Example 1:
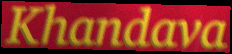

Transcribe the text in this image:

Khandava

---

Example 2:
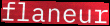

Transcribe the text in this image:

flaneur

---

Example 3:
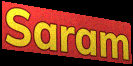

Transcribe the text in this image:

Saram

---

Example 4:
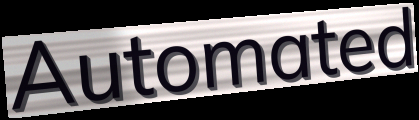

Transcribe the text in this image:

Automated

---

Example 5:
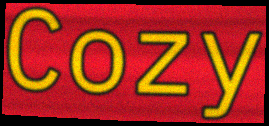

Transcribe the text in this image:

Cozy